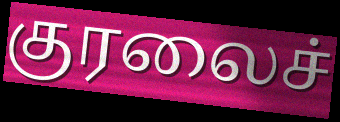
குரலைச்